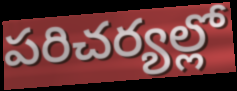
పరిచర్యల్లో